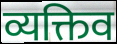
व्यक्तिव